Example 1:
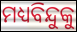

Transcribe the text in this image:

ମଧ୍ୟବିନ୍ଦୁକୁ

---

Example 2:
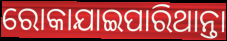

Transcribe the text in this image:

ରୋକାଯାଇପାରିଥାନ୍ତା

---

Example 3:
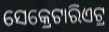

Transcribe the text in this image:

ସେକ୍ରେଟାରିଏଟ୍ର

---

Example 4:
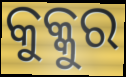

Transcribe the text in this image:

କୁକ୍କୁର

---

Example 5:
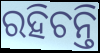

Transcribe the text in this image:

ରହିଚନ୍ତି